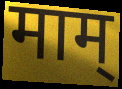
माम्